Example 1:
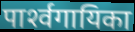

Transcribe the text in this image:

पार्श्वगायिका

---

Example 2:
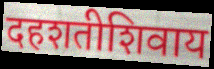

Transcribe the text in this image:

दहशतीशिवाय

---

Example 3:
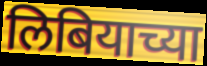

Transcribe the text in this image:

लिबियाच्या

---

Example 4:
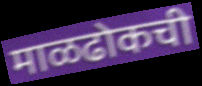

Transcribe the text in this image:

माळढोकची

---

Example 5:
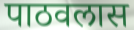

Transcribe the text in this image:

पाठवलास